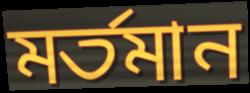
মর্তমান